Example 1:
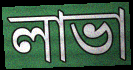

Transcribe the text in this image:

লাভা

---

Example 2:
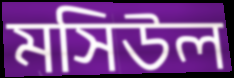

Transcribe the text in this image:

মসিউল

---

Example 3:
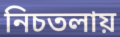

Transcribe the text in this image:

নিচতলায়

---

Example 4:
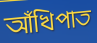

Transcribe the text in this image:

আঁখিপাত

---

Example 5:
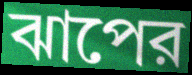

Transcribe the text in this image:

ঝাপের